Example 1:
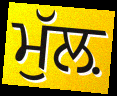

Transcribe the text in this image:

ਮੁੱਲ਼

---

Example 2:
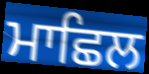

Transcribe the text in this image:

ਮਾਛਿਲ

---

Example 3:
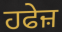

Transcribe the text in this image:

ਹਫੇਜ਼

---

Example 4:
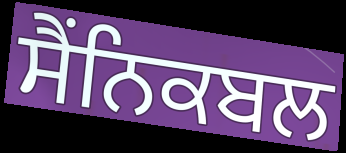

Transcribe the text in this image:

ਸੈੰਨਿਕਬਲ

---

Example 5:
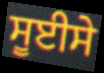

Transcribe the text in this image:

ਸੂਈਸੇ